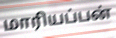
மாரியப்பன்